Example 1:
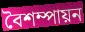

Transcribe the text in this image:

বৈশম্পায়ন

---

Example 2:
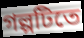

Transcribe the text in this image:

গল্পটিতে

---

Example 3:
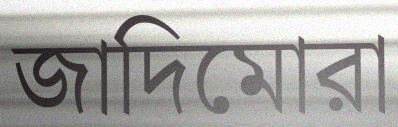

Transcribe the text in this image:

জাদিমোরা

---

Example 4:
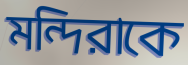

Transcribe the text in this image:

মন্দিরাকে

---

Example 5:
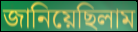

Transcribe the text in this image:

জানিয়েছিলাম